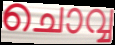
ചൊവ്വ